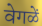
वेगळें